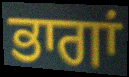
ਭਾਗਾਂ